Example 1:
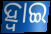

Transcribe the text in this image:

ହ୍ଵାଇ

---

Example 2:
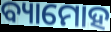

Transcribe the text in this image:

ବ୍ୟାମୋହ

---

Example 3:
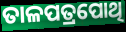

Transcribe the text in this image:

ତାଳପତ୍ରପୋଥି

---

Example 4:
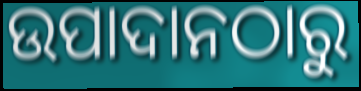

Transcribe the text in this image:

ଉପାଦାନଠାରୁ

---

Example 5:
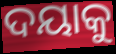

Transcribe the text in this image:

ଦୟାକୁ